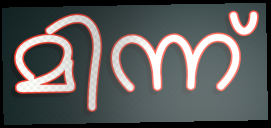
മിന്ന്